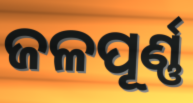
ଜଳପୂର୍ଣ୍ଣ